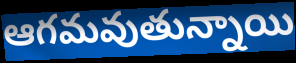
ఆగమవుతున్నాయి